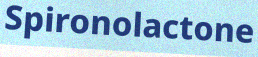
Spironolactone